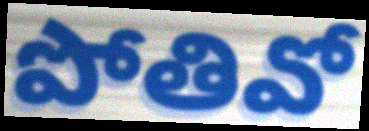
పోతివో